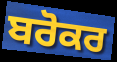
ਬਰੋਕਰ